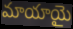
మాయాయై